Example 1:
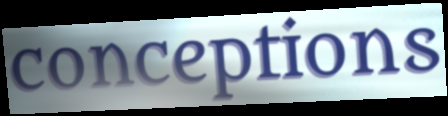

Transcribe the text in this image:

conceptions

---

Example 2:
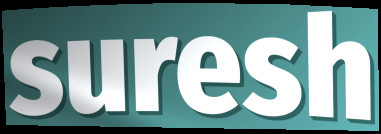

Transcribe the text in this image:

suresh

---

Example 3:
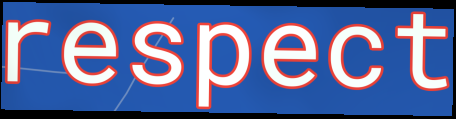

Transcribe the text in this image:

respect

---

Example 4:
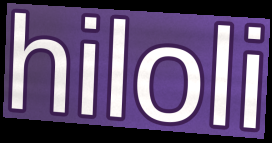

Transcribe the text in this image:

hiloli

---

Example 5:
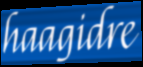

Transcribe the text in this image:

haagidre